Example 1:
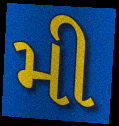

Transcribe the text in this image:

મી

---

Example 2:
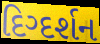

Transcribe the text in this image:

દિગ્દર્શન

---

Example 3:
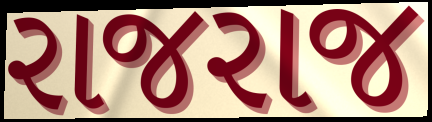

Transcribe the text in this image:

રાજરાજ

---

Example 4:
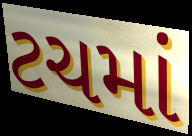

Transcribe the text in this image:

ટચમાં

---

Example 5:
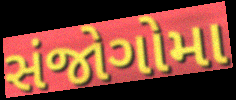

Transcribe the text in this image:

સંજોગોમા